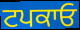
ਟਪਕਾਓ